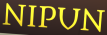
NIPUN